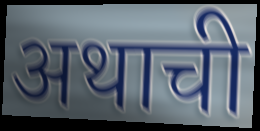
अथाची